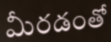
మీరడంతో